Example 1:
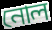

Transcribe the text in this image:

নোল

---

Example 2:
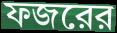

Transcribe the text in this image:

ফজরের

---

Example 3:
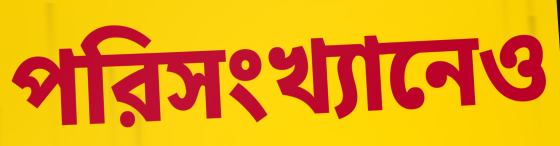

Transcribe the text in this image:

পরিসংখ্যানেও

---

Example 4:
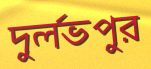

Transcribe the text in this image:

দুর্লভপুর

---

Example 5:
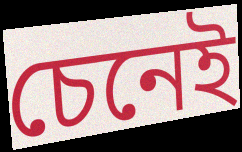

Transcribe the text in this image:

চেনেই